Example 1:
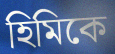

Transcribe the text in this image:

হিমিকে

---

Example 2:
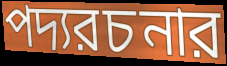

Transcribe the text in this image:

পদ্যরচনার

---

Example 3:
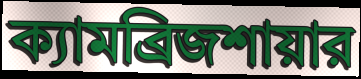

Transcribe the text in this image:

ক্যামব্রিজশায়ার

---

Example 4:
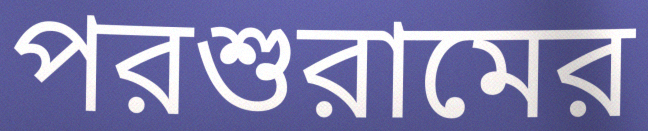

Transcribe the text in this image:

পরশুরামের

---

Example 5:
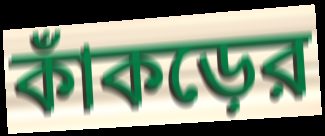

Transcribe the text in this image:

কাঁকড়ের